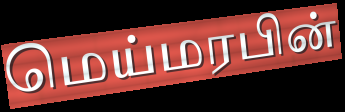
மெய்மரபின்